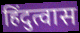
हिंदुत्वास